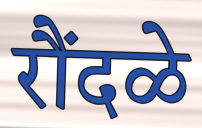
रौंदळे